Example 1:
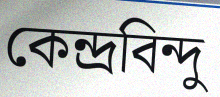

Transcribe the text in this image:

কেন্দ্রবিন্দু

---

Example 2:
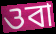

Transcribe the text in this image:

ওবা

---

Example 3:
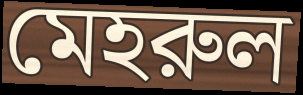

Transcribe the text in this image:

মেহরুল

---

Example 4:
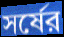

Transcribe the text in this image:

সর্ষের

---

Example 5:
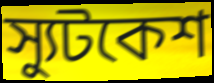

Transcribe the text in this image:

স্যুটকেশ